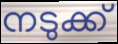
നടുക്ക്